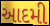
આદમી